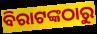
ବିରାଟଙ୍କଠାରୁ